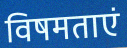
विषमताएं